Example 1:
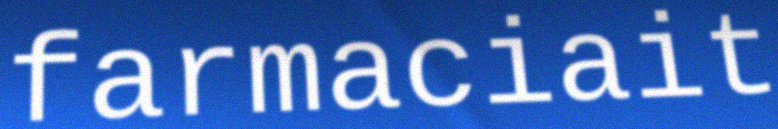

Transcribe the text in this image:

farmaciait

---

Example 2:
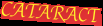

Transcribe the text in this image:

CATARACT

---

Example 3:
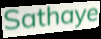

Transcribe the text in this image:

Sathaye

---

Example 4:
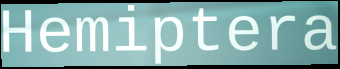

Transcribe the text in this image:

Hemiptera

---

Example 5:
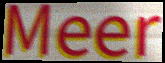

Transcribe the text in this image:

Meer